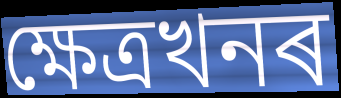
ক্ষেত্ৰখনৰ